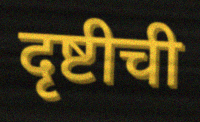
दृष्टीची